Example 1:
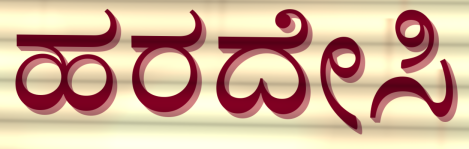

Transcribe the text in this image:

ಹರದೇಸಿ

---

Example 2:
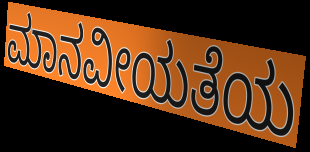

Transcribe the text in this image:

ಮಾನವೀಯತೆಯ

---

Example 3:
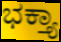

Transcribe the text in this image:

ಭಕ್ತ್ಯಾ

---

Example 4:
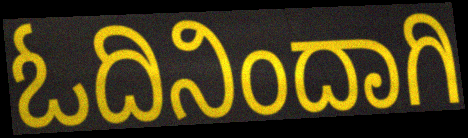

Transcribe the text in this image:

ಓದಿನಿಂದಾಗಿ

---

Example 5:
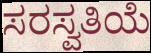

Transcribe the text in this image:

ಸರಸ್ವತಿಯೆ